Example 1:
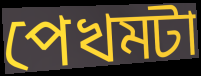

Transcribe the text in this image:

পেখমটা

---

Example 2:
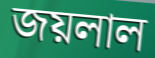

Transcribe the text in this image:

জয়লাল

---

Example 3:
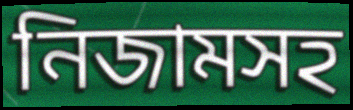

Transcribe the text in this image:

নিজামসহ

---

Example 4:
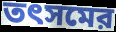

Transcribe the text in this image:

তৎসমের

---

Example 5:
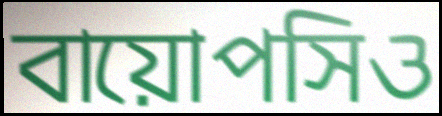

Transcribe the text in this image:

বায়োপসিও